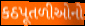
કઠપૂતળીઓનો